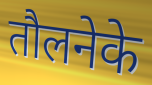
तौलनेके